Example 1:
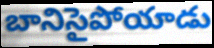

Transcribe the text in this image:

బానిసైపోయాడు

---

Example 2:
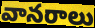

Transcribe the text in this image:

వానరాలు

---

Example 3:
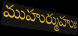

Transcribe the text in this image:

ముహుర్ముహుః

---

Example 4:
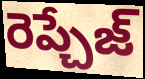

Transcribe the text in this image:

రెప్చేజ్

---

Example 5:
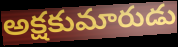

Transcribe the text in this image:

అక్షకుమారుడు